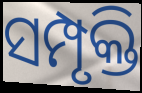
ସମ୍ପୃକ୍ତି